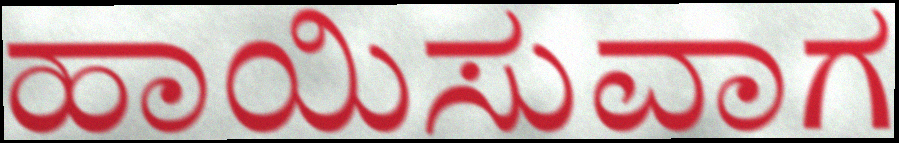
ಹಾಯಿಸುವಾಗ